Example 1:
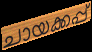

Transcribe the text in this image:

ചായക്കപ്പ്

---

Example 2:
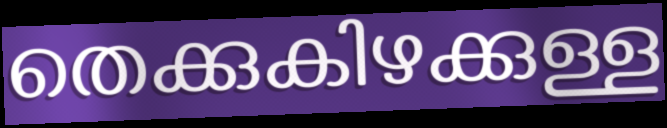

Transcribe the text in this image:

തെക്കുകിഴക്കുള്ള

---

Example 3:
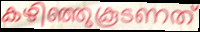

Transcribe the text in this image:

കഴിഞ്ഞുകൂടണത്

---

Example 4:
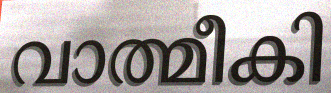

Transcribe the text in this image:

വാത്മീകി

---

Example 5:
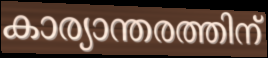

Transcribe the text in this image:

കാര്യാന്തരത്തിന്